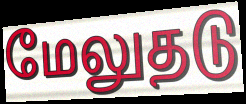
மேலுதடு